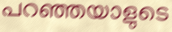
പറഞ്ഞയാളുടെ